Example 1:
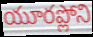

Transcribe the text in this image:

యూరప్లోని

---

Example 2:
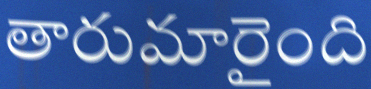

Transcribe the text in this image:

తారుమారైంది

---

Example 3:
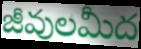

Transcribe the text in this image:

జీవులమీద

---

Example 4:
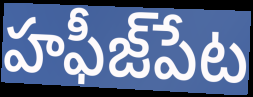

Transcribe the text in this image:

హఫీజ్‌పేట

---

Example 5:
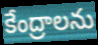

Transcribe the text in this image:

కేంద్రాలను